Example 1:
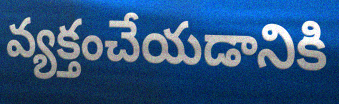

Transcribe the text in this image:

వ్యక్తంచేయడానికి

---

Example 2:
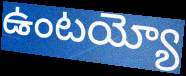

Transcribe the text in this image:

ఉంటయ్యో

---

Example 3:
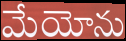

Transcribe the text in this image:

మేయోను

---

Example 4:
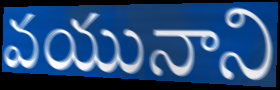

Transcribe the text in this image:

వయునాని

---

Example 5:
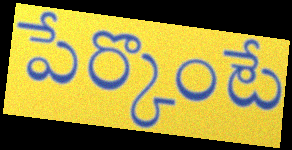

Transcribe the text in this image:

పేర్కొంటే